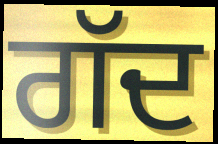
ਗੱਦ